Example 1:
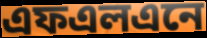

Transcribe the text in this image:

এফএলএনে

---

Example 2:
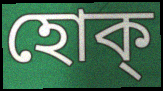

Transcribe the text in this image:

হোক্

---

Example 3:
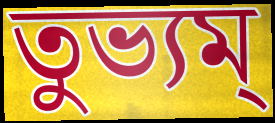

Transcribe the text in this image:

তুভ্যম্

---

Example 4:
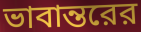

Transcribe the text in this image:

ভাবান্তরের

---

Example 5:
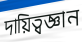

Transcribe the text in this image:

দায়িত্বজ্ঞান